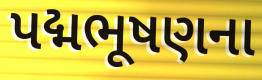
પદ્મભૂષણના